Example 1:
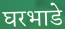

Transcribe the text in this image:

घरभाडे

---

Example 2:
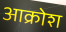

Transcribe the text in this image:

आक्रोश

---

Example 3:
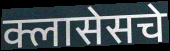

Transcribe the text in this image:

क्लासेसचे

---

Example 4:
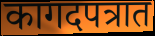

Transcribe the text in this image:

कागदपत्रात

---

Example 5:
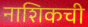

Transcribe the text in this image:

नाशिकची